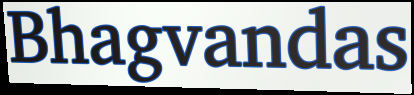
Bhagvandas